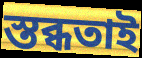
স্তব্ধতাই